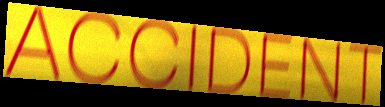
ACCIDENT